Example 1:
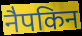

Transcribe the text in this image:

नैपकिन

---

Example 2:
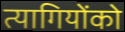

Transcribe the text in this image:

त्यागियोंको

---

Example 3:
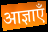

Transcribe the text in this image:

आज्ञाएँ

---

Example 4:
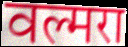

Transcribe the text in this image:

वल्मरा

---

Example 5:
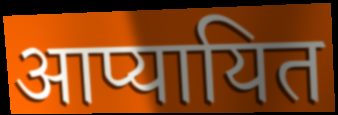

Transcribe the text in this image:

आप्यायित